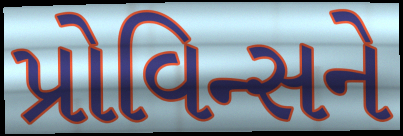
પ્રોવિન્સને